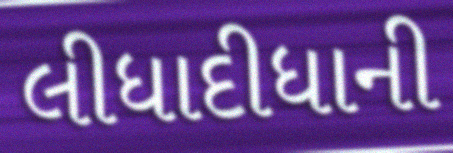
લીધાદીધાની